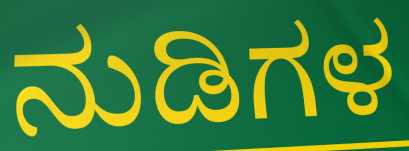
ನುಡಿಗಳ